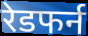
रेडफर्न